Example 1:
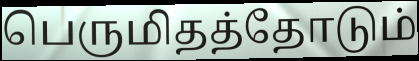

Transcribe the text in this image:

பெருமிதத்தோடும்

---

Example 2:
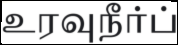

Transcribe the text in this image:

உரவுநீர்ப்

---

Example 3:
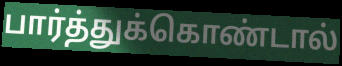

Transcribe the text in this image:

பார்த்துக்கொண்டால்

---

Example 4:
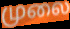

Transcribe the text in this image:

முலை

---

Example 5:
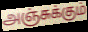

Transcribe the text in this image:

அஞ்சுக்கும்